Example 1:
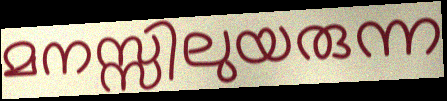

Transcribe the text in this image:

മനസ്സിലുയരുന്ന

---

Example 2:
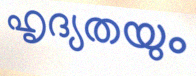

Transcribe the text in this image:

ഹൃദ്യതയും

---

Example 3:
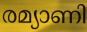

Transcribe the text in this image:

രമ്യാണി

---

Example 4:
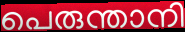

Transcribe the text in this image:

പെരുന്താനി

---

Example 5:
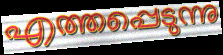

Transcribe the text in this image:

എത്തപ്പെടുന്നു